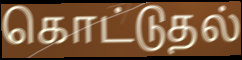
கொட்டுதல்